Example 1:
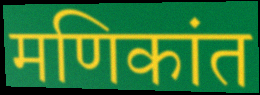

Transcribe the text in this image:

मणिकांत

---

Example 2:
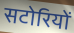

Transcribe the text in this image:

सटोरियों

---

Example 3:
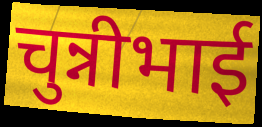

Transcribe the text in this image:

चुन्नीभाई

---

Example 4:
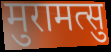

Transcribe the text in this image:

मुरामत्सु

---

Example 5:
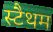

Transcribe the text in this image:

स्टैथम